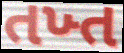
તખ્ત